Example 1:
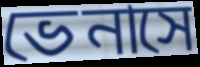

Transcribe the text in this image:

ভেনাসে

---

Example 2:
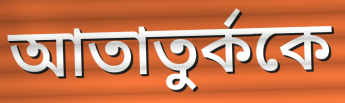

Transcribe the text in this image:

আতাতুর্ককে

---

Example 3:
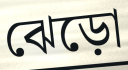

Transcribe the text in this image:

ঝেড়ো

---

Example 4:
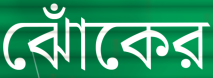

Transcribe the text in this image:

ঝোঁকের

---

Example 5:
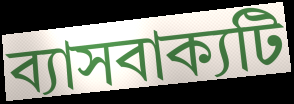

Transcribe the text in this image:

ব্যাসবাক্যটি